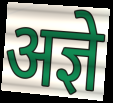
अज्ञे